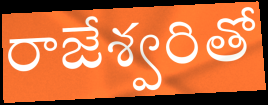
రాజేశ్వరితో